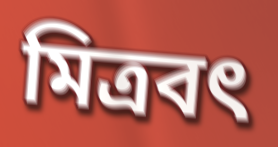
মিত্রবৎ